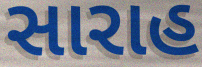
સારાહ